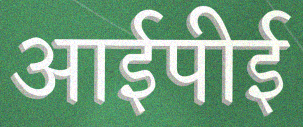
आईपीई